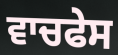
ਵਾਚਫੇਸ